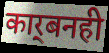
कार्बनही